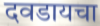
दवडायचा